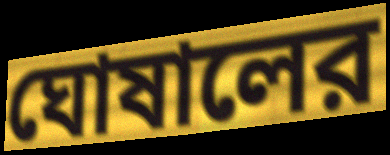
ঘোষালের